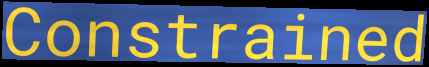
Constrained